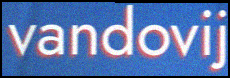
vandovij